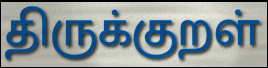
திருக்குறள்